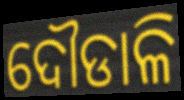
ଦୌଡାଳି